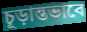
চূড়ান্তভাবে